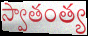
స్వాతంత్య